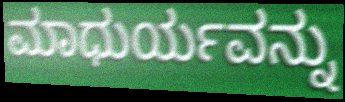
ಮಾಧುರ್ಯವನ್ನು